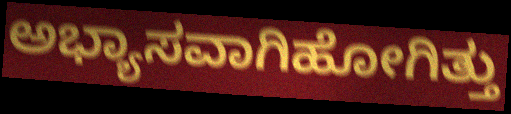
ಅಭ್ಯಾಸವಾಗಿಹೋಗಿತ್ತು